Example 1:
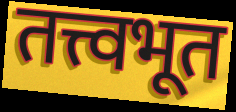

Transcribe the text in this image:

तत्त्वभूत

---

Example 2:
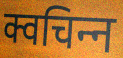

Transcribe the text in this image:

क्वचिन्न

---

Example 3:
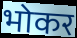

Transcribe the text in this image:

भोकर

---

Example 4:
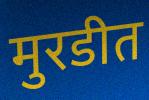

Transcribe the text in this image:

मुरडीत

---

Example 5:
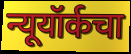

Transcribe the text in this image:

न्यूयॉर्कचा